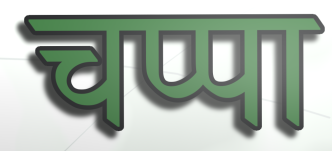
चप्पा